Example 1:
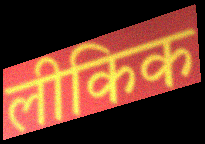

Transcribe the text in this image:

लीकिक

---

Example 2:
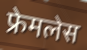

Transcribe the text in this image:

फ्रेमलेस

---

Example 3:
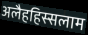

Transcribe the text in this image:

अलैहहिस्सलाम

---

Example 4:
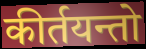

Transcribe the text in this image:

कीर्तयन्तो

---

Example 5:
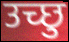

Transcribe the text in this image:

उच्छु